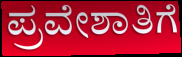
ಪ್ರವೇಶಾತಿಗೆ